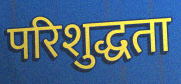
परिशुद्धता